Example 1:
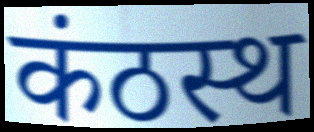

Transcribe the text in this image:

कंठस्थ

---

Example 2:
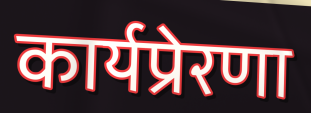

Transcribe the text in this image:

कार्यप्रेरणा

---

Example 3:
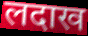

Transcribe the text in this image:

लदाख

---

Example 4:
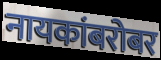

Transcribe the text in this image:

नायकांबरोबर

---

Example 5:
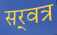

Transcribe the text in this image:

सर्वत्र